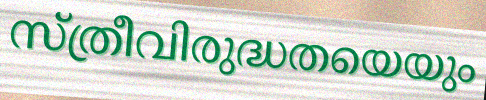
സ്ത്രീവിരുദ്ധതയെയും